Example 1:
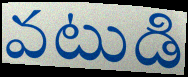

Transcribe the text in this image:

వటుడి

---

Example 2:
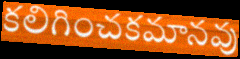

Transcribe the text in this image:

కలిగించకమానవు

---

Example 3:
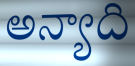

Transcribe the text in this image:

అన్యాది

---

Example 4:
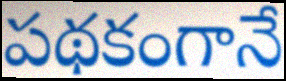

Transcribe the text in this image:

పథకంగానే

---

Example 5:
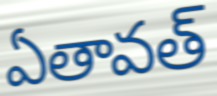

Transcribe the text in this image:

ఏతావత్